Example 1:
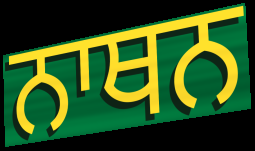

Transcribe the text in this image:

ਨਾਥਨ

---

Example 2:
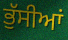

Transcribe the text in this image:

ਭੁੱਸੀਆਂ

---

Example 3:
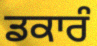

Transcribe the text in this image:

ਡਕਾਰੰ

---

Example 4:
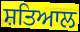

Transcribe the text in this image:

ਸ਼ਤਿਆਲ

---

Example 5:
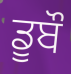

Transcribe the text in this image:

ਡੂਬੌ